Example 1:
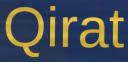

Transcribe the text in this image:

Qirat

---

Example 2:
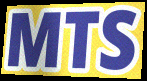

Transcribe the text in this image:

MTS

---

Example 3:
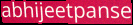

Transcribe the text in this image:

abhijeetpanse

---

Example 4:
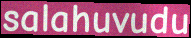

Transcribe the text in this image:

salahuvudu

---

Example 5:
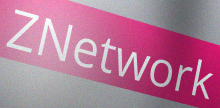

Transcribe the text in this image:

ZNetwork